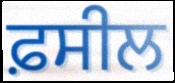
ਫ਼ਸੀਲ